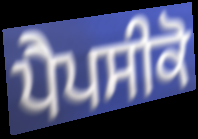
ਪੈਪਸੀਕੋ